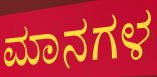
ಮಾನಗಳ